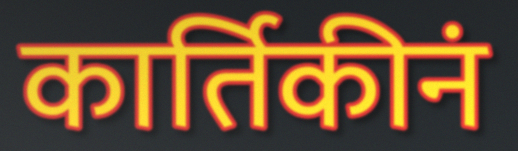
कार्तिकीनं